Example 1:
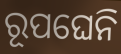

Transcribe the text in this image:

ରୂପଘେନି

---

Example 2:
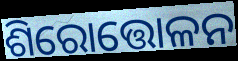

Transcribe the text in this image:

ଶିରୋତ୍ତୋଳନ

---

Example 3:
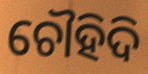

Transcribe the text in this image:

ଚୌହିଦି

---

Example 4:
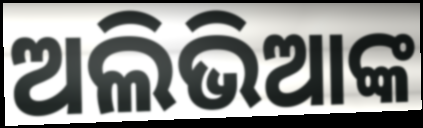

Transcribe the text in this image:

ଅଲିଭିଆଙ୍କ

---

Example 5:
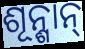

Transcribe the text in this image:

ଶୂନ୍ଶାନ୍